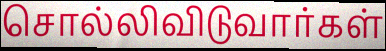
சொல்லிவிடுவார்கள்